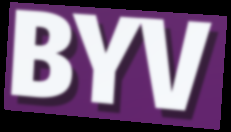
BYV